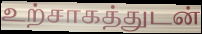
உற்சாகத்துடன்